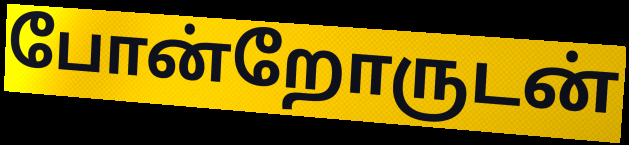
போன்றோருடன்